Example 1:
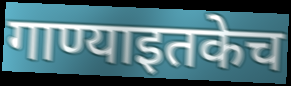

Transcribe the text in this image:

गाण्याइतकेच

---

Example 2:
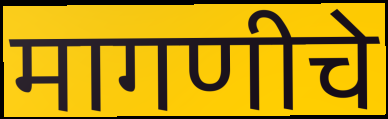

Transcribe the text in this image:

मागणीचे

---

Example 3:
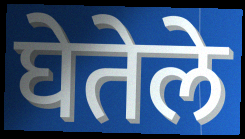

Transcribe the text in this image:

घेतेले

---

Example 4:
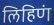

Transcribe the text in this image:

लिहिणं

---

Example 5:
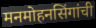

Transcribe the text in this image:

मनमोहनसिंगांची